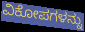
ವಿಕೋಪಗಳನ್ನು